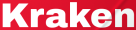
Kraken